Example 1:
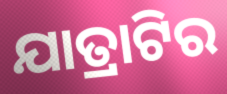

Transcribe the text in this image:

ଯାତ୍ରାଟିର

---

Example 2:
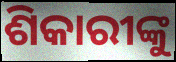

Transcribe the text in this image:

ଶିକାରୀଙ୍କୁ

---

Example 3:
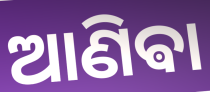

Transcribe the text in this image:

ଆଣିଵା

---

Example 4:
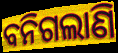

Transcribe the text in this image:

ବନିଗଲାଣି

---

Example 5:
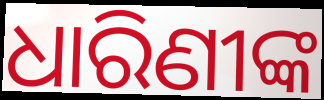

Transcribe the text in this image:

ଧାରିଣୀଙ୍କ